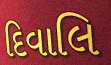
દિવાલિ